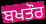
ਬਖਤੌਰ